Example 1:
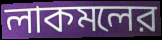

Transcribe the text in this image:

লাকমলের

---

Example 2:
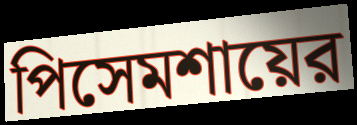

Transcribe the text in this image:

পিসেমশায়ের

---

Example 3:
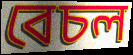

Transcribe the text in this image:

বেচল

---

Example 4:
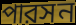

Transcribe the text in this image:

পারসন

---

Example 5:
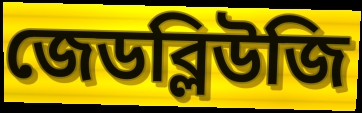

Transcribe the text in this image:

জেডব্লিউজি